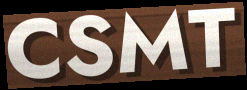
CSMT